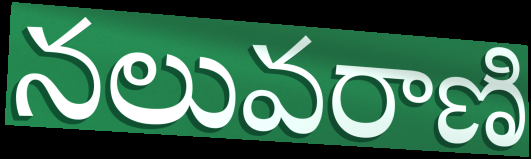
నలువరాణి